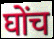
घोंच